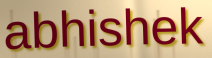
abhishek